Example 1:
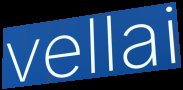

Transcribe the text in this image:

vellai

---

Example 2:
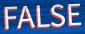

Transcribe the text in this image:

FALSE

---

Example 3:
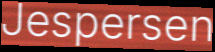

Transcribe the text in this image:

Jespersen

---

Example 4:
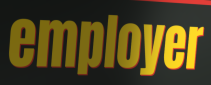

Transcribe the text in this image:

employer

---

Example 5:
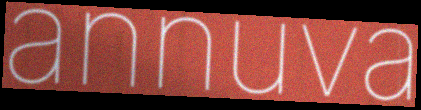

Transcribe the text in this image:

annuva